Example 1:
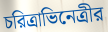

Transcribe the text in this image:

চরিত্রাভিনেত্রীর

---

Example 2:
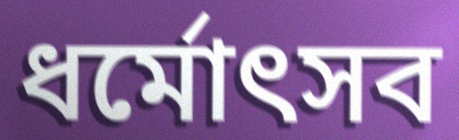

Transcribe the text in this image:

ধর্মোৎসব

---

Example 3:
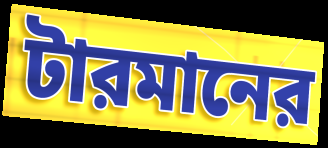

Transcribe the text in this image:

টারমানের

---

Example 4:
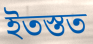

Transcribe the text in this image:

ইতস্তত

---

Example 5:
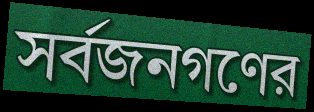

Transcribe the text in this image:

সর্বজনগণের